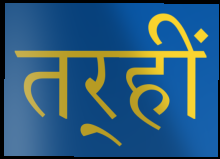
तर्हीं